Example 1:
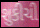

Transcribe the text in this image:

શુકીચી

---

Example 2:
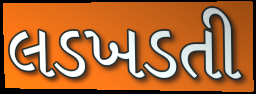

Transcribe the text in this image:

લડખડતી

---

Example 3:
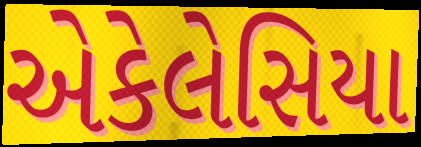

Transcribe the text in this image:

એકેલેસિયા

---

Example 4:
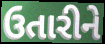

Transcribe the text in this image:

ઉતારીને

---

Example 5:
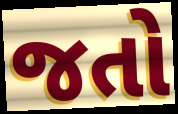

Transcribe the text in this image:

જતો